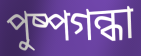
পুষ্পগন্ধা